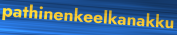
pathinenkeelkanakku